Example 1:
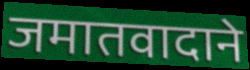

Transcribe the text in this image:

जमातवादाने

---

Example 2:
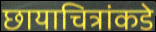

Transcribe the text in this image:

छायाचित्रांकडे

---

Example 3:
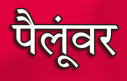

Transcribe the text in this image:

पैलूंवर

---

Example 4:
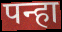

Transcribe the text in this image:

पन्हा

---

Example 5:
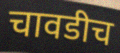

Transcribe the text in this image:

चावडीच